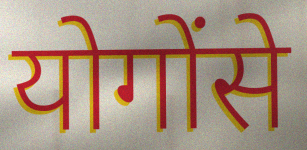
योगोंसे